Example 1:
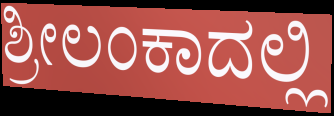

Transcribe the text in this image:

ಶ್ರೀಲಂಕಾದಲ್ಲಿ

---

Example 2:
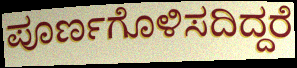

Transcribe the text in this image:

ಪೂರ್ಣಗೊಳಿಸದಿದ್ದರೆ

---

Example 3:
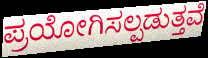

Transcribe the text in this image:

ಪ್ರಯೋಗಿಸಲ್ಪಡುತ್ತವೆ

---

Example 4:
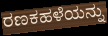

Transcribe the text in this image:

ರಣಕಹಳೆಯನ್ನು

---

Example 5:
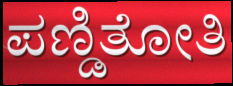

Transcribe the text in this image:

ಪಣ್ಡಿತೋತಿ